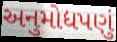
અનુમોદ્યપણું